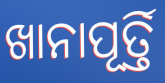
ଖାନାପୂର୍ତ୍ତି